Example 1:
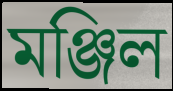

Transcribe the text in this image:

মঞ্জিল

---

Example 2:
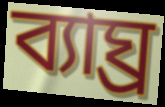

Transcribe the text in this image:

ব্যাঘ্ৰ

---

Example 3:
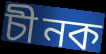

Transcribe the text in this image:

চীনক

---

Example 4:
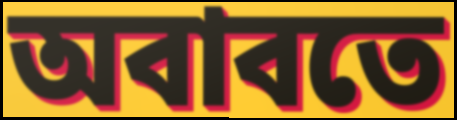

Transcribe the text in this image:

অবাবতে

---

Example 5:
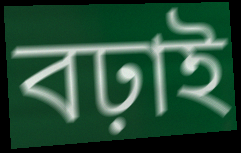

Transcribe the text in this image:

বঢ়াই